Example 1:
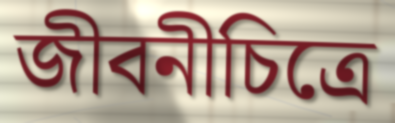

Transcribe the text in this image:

জীবনীচিত্রে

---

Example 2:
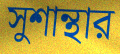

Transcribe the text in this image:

সুশান্থার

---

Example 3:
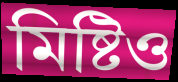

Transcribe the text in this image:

মিষ্টিও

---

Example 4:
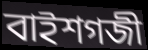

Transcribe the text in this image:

বাইশগজী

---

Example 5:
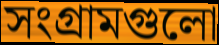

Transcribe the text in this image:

সংগ্রামগুলো